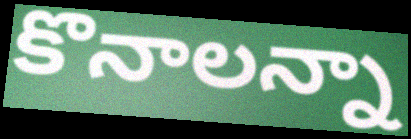
కొనాలన్నా